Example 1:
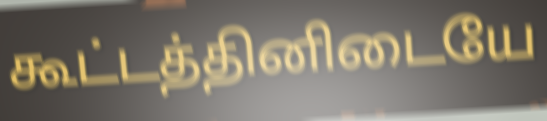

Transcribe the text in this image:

கூட்டத்தினிடையே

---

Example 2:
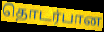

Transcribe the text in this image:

தொடர்பான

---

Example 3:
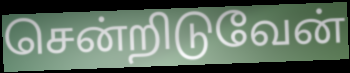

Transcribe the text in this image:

சென்றிடுவேன்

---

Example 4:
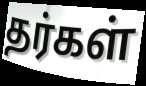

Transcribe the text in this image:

தர்கள்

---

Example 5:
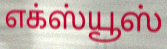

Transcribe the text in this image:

எக்ஸ்யூஸ்